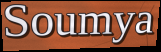
Soumya